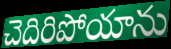
చెదిరిపోయాను